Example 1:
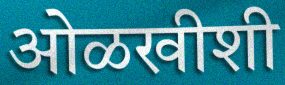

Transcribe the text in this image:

ओळखीशी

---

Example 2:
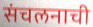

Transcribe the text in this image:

संचलनाची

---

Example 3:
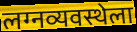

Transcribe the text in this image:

लग्नव्यवस्थेला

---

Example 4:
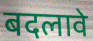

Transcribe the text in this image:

बदलावे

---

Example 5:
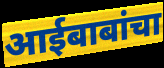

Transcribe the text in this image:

आईबाबांचा